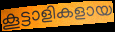
കൂട്ടാളികളായ